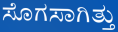
ಸೊಗಸಾಗಿತ್ತು